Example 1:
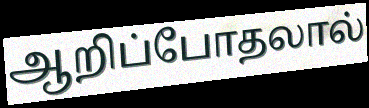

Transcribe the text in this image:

ஆறிப்போதலால்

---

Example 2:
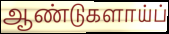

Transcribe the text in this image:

ஆண்டுகளாய்ப்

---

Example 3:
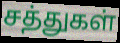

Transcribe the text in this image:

சத்துகள்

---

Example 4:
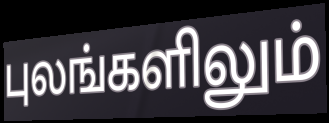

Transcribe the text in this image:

புலங்களிலும்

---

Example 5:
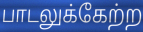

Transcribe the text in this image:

பாடலுக்கேற்ற